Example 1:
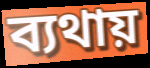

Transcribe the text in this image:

ব্যথায়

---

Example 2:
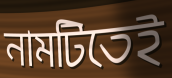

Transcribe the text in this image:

নামটিতেই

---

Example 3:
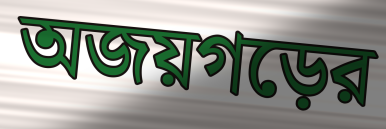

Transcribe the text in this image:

অজয়গড়ের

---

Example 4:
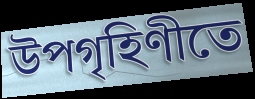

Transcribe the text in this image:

উপগৃহিণীতে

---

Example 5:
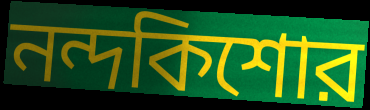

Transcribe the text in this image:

নন্দকিশোর